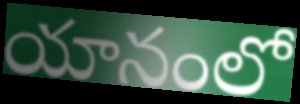
యానంలో